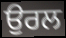
ਉਰਲ